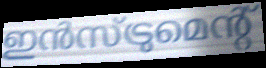
ഇൻസ്ട്രുമെന്റ്